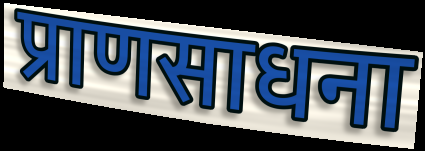
प्राणसाधना